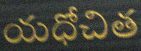
యధోచిత